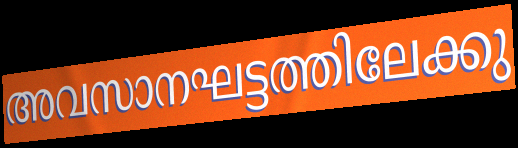
അവസാനഘട്ടത്തിലേക്കു